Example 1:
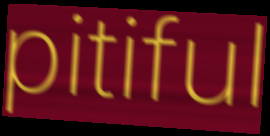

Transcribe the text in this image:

pitiful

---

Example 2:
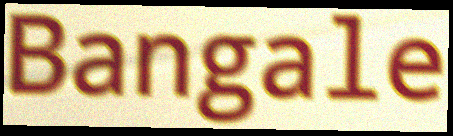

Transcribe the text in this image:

Bangale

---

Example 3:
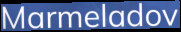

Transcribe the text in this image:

Marmeladov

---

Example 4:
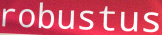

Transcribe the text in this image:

robustus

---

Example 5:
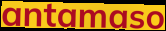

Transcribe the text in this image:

antamaso